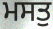
ਮਸਤੁ